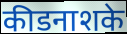
कीडनाशके